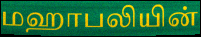
மஹாபலியின்